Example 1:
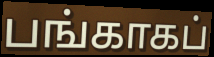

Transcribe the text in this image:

பங்காகப்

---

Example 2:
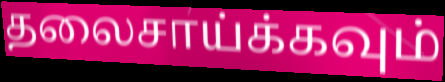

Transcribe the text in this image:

தலைசாய்க்கவும்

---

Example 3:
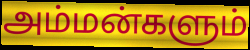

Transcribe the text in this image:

அம்மன்களும்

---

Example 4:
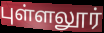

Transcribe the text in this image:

புள்ளலூர்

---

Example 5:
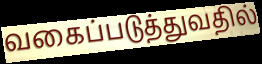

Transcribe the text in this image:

வகைப்படுத்துவதில்